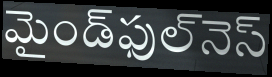
మైండ్‌ఫుల్‌నెస్